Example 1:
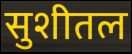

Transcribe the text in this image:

सुशीतल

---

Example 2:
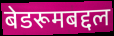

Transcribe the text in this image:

बेडरूमबद्दल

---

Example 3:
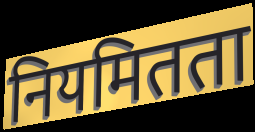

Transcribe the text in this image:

नियमितता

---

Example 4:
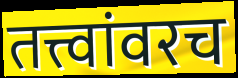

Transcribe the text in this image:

तत्त्वांवरच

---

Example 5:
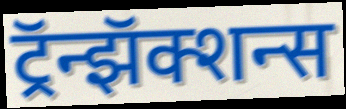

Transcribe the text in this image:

ट्रॅन्झॅक्शन्स